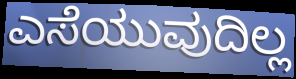
ಎಸೆಯುವುದಿಲ್ಲ